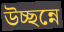
উচ্ছন্নে